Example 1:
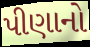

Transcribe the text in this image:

પીણાનો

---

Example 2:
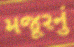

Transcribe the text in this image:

મજૂરનું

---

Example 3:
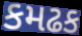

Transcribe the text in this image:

કમઢક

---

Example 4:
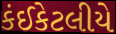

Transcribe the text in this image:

કંઈકેટલીયે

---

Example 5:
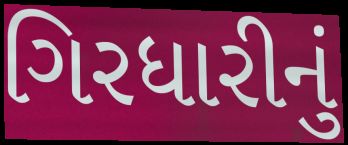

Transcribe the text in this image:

ગિરધારીનું